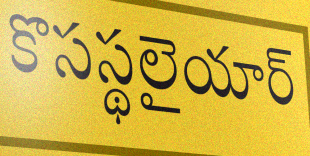
కొసస్థలైయార్